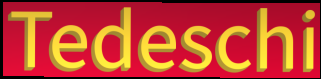
Tedeschi